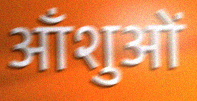
आँशुओं